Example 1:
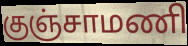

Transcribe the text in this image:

குஞ்சாமணி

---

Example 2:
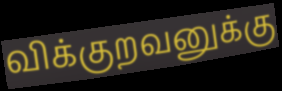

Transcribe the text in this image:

விக்குறவனுக்கு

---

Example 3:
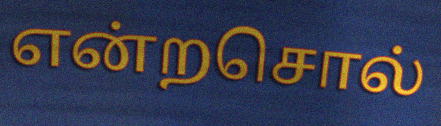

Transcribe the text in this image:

என்றசொல்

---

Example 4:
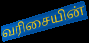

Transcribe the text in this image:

வரிசையின்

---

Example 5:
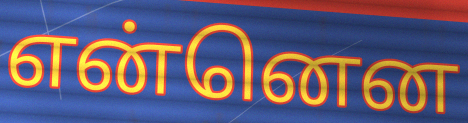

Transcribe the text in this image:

என்னென